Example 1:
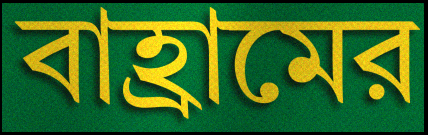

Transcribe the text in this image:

বাহ্রামের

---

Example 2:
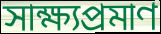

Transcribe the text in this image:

সাক্ষ্যপ্রমাণ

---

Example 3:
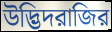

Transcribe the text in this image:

উদ্ভিদরাজির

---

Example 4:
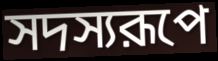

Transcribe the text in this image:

সদস্যরূপে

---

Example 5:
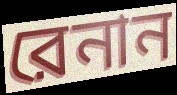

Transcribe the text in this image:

রেনান